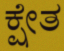
ಕ್ಷೇತ